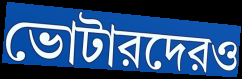
ভোটারদেরও